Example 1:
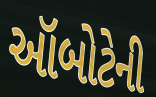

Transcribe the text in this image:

ઑબોટેની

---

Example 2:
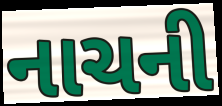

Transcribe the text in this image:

નાચની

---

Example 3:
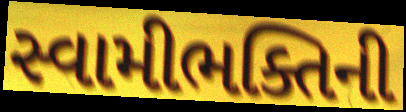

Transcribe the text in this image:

સ્વામીભક્તિની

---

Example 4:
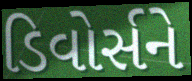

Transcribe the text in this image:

ડિવોર્સને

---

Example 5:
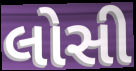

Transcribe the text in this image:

લોસી